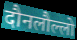
दौनलौल्लो